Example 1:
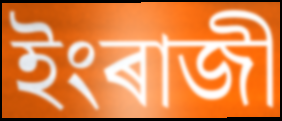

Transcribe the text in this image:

ইংৰাজী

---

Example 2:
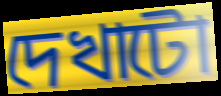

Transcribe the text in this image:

দেখাটো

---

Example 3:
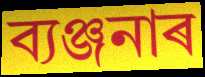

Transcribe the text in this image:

ব্যঞ্জনাৰ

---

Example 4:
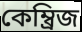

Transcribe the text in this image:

কেম্ব্ৰিজ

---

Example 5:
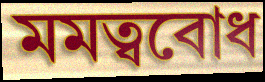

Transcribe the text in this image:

মমত্ববোধ